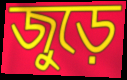
জুড়ে